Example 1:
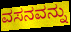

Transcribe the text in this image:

ವಸನವನ್ನು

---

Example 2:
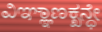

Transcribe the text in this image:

ವಿಞ್ಞಾಣಕ್ಖನ್ಧೇ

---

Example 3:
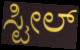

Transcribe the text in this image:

ಸ್ಟೀಲ್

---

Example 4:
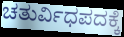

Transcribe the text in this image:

ಚತುರ್ವಿಧಪದಕ್ಕೆ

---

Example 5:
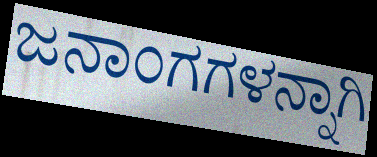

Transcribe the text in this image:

ಜನಾಂಗಗಳನ್ನಾಗಿ